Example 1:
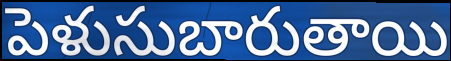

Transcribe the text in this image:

పెళుసుబారుతాయి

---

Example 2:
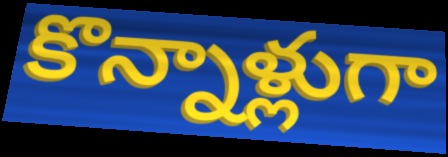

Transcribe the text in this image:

కొన్నాళ్లుగా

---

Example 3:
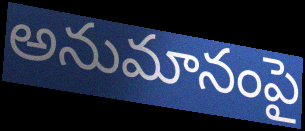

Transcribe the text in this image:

అనుమానంపై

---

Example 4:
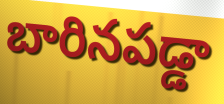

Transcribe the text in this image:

బారినపడ్డా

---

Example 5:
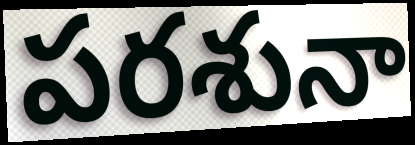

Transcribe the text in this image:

పరశునా